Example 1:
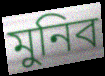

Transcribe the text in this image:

মুনিব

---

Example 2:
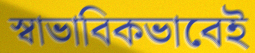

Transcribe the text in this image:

স্বাভাবিকভাবেই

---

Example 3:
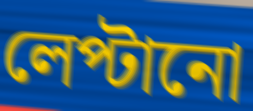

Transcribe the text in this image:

লেপ্টানো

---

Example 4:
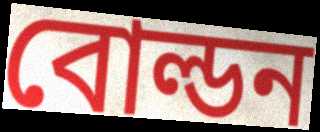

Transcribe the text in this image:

বোল্ডন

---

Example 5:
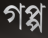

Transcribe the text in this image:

গপ্প